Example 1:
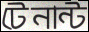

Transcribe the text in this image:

টেনান্ট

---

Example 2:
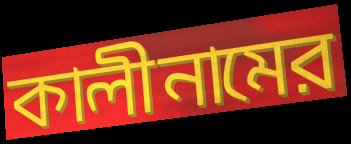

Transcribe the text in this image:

কালীনামের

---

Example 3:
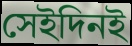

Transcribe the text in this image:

সেইদিনই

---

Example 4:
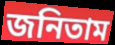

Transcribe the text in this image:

জনিতাম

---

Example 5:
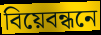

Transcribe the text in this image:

বিয়েবন্ধনে